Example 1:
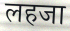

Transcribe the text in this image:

लहजा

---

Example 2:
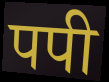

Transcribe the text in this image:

पपी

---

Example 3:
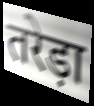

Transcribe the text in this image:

तरेड़ा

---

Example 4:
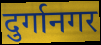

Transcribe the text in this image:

दुर्गानगर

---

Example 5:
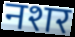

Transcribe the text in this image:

नशर